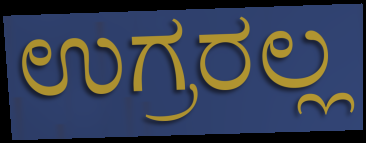
ಉಗ್ರರಲ್ಲ